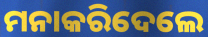
ମନାକରିଦେଲେ